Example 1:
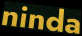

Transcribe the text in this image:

ninda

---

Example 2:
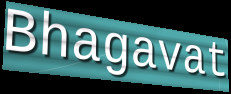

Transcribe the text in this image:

Bhagavat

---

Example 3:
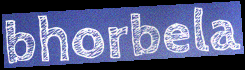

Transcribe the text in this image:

bhorbela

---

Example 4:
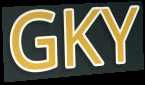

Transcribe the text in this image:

GKY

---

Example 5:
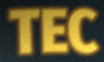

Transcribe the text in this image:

TEC